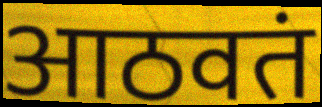
आठवतं